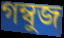
গম্বুজ